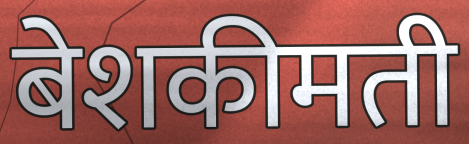
बेशकीमती